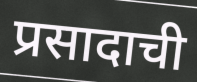
प्रसादाची